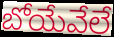
బోయేవేలే